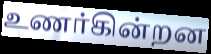
உணர்கின்றன